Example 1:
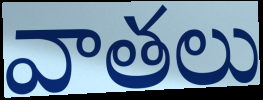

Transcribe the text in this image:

వాతలు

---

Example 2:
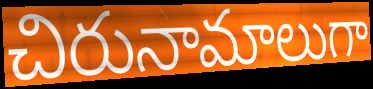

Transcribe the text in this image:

చిరునామాలుగా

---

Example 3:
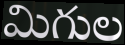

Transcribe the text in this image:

మిగుల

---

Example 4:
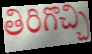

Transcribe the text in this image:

తిరిగొచ్చి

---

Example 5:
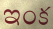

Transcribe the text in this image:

ఇంక